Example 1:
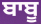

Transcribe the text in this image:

ਬਾਬੂ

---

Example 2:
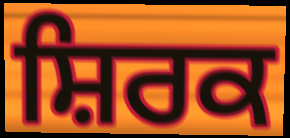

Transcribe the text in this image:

ਸ਼ਿਰਕ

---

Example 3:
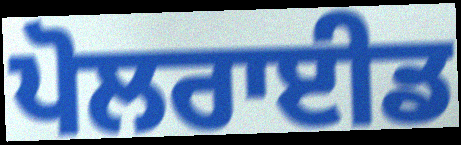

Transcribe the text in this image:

ਪੋਲਰਾਈਡ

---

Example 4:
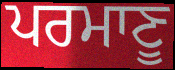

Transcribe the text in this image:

ਪਰਮਾਣੂ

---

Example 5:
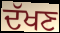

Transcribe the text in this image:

ਦੱਖਣ